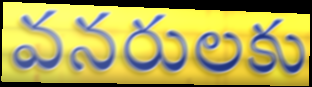
వనరులకు